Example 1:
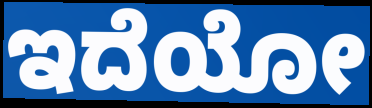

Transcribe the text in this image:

ಇದೆಯೋ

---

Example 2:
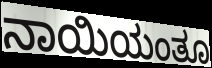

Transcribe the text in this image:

ನಾಯಿಯಂತೂ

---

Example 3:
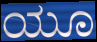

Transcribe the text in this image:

ಯೂ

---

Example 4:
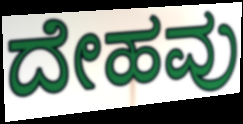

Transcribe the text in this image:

ದೇಹವು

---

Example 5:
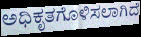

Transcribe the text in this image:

ಅಧಿಕೃತಗೊಳಿಸಲಾಗಿದೆ